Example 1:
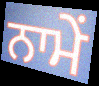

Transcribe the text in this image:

ਨਾਮੇਂ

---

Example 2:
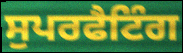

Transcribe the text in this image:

ਸੁਪਰਫੈਟਿੰਗ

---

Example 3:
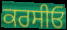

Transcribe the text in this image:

ਕਰਸੀਓ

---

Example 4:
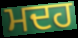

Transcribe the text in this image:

ਮਦਹ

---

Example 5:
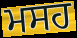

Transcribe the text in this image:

ਮਸਹ